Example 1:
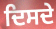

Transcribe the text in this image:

ਦਿਸਦੇ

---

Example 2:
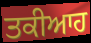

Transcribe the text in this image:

ਤਕੀਆਹ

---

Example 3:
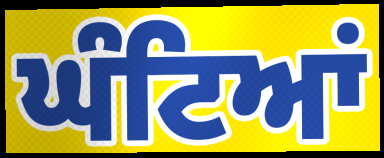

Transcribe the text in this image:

ਘੰਟਿਆਂ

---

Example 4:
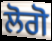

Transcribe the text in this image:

ਲੋਗੋ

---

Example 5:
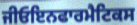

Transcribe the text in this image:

ਜੀਓਇਨਫਾਰਮੈਟਿਕਸ